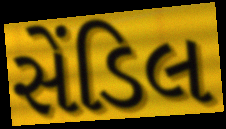
સેંડિલ